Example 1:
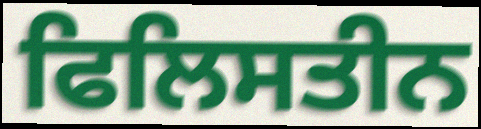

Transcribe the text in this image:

ਫਿਲਿਸਤੀਨ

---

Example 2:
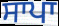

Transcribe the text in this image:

ਸਾਪਾ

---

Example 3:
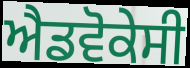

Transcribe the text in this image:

ਐਡਵੋਕੇਸੀ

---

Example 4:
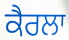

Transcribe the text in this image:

ਕੈਰਲਾ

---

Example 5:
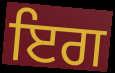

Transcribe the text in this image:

ਇਗ